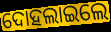
ଦୋହଲାଇଲେ